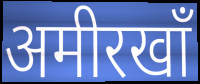
अमीरखाँ